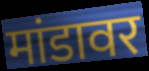
मांडावर